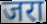
जरा